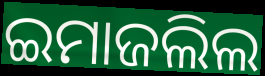
ଇମାଜଲିଲ